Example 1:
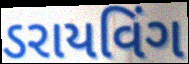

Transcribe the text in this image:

ડરાયવિંગ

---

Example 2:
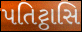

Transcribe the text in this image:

પતિટ્ઠાસિ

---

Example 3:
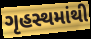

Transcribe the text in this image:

ગૃહસ્થમાંથી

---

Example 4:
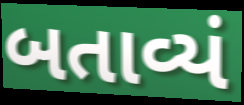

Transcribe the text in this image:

બતાવ્યં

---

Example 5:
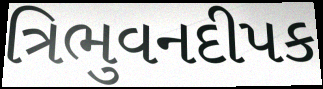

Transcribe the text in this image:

ત્રિભુવનદીપક